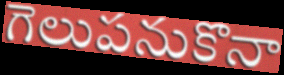
గెలుపనుకొనా